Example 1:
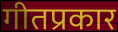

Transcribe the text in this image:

गीतप्रकार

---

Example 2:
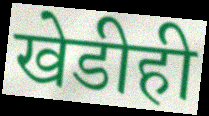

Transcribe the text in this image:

खेडीही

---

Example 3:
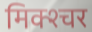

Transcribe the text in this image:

मिक्श्चर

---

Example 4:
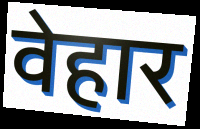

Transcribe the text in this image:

वेहार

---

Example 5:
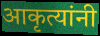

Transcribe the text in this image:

आकृत्यांनी